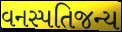
વનસ્પતિજન્ય